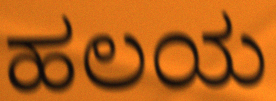
ಹಲಯ